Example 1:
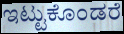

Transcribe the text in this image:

ಇಟ್ಟುಕೊಂಡರೆ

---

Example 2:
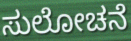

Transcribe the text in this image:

ಸುಲೋಚನೆ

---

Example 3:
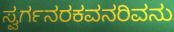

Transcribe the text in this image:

ಸ್ವರ್ಗನರಕವನರಿವನು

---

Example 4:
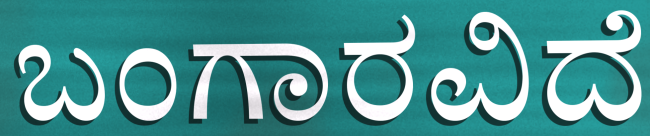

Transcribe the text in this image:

ಬಂಗಾರವಿದೆ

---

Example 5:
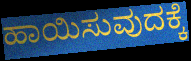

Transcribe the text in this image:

ಹಾಯಿಸುವುದಕ್ಕೆ